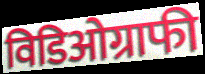
विडिओग्राफी